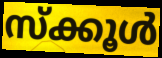
സ്ക്കൂൾ